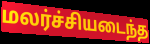
மலர்ச்சியடைந்த